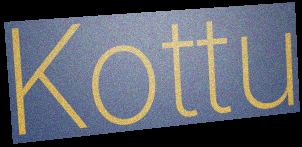
Kottu